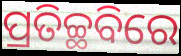
ପ୍ରତିଚ୍ଛବିରେ